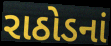
રાઠોડનાં